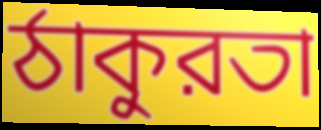
ঠাকুরতা